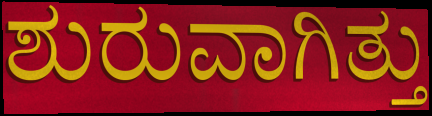
ಶುರುವಾಗಿತ್ತು